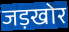
जड़खोर